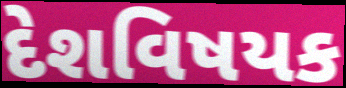
દેશવિષયક